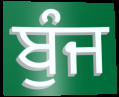
ਬੁੰਜ